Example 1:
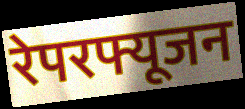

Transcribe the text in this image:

रेपरफ्यूजन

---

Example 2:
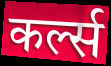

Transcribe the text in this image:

कर्ल्स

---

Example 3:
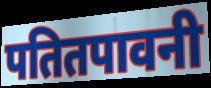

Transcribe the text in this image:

पतितपावनी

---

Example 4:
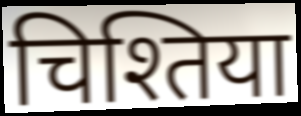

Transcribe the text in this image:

चिश्तिया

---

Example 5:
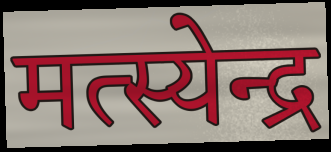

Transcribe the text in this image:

मत्स्येन्द्र